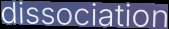
dissociation